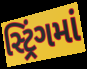
સ્ટ્રિંગમાં